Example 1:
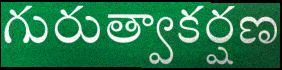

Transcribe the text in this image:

గురుత్వాకర్షణ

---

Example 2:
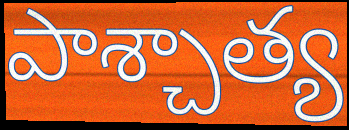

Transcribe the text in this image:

పాశ్చాత్య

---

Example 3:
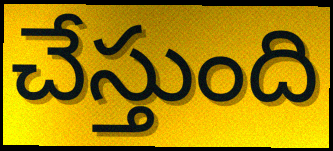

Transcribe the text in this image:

చేస్తుంది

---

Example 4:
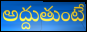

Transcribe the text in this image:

అద్దుతుంటే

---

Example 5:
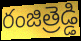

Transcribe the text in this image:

రంజిత్రెడ్డి